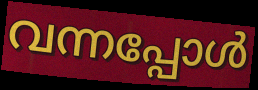
വന്നപ്പോൾ